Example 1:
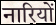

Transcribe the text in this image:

नारियों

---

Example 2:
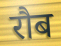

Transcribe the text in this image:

रौब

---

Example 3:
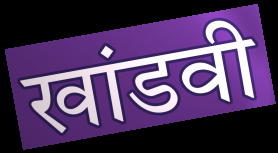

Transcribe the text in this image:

खांडवी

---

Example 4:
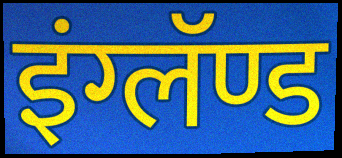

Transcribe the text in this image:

इंग्लॅण्ड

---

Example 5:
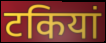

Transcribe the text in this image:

टकियां